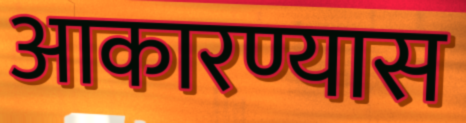
आकारण्यास